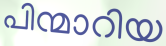
പിന്മാറിയ